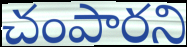
చంపారని